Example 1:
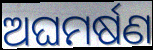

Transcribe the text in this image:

ଅଘମର୍ଷଣ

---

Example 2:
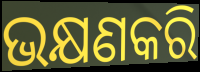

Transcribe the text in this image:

ଭକ୍ଷଣକରି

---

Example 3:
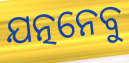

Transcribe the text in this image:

ଯତ୍ନନେବୁ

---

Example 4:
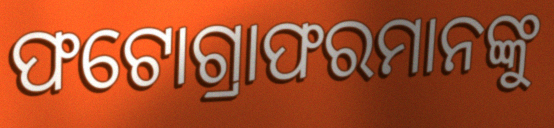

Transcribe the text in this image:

ଫଟୋଗ୍ରାଫରମାନଙ୍କୁ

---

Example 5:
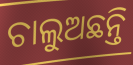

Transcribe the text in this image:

ଚାଲୁଅଛନ୍ତି